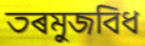
তৰমুজবিধ